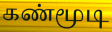
கண்மூடி